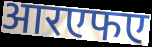
आरएफए